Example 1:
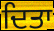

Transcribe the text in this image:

ਦਿਤਾ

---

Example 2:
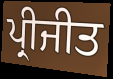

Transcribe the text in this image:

ਪ੍ਰੀਜੀਤ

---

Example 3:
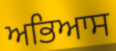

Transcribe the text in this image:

ਅਭਿਆਸ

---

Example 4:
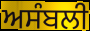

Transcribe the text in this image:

ਅਸੰਬਲੀ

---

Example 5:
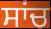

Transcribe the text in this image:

ਸਾਂਚ